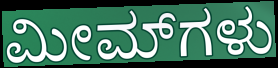
ಮೀಮ್‌ಗಳು